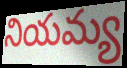
నియమ్య